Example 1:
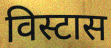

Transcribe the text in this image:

विस्टास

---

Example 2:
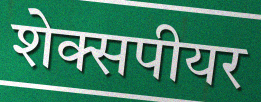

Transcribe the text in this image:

शेक्सपीयर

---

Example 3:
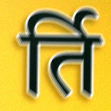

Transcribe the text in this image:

र्ति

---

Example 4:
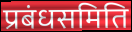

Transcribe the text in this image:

प्रबंधसमिति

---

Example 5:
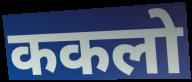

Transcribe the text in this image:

ककलो